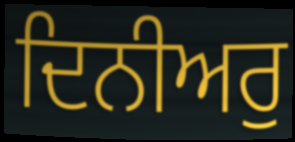
ਦਿਨੀਅਰੁ